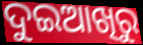
ଦୁଇଆଖିରୁ